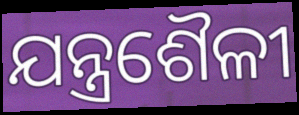
ଯନ୍ତ୍ରଶୈଳୀ